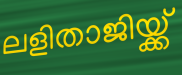
ലളിതാജിയ്ക്ക്